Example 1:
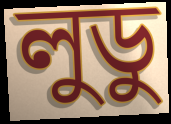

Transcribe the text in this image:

লুডু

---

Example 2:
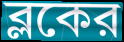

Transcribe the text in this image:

ব্লকের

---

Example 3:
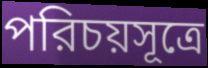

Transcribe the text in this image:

পরিচয়সূত্রে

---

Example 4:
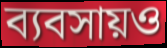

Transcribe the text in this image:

ব্যবসায়ও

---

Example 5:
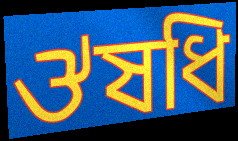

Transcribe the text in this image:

ঔষধি